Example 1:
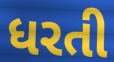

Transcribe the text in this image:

ધરતી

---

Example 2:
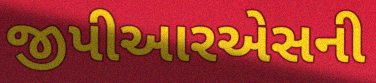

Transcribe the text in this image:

જીપીઆરએસની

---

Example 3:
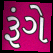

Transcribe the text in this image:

રૂંગે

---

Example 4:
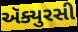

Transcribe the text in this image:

ઍક્યુરસી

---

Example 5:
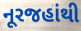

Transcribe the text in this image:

નૂરજહાંથી